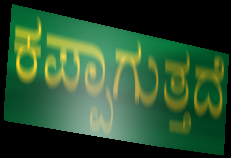
ಕಪ್ಪಾಗುತ್ತದೆ